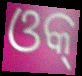
ଓକ୍